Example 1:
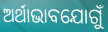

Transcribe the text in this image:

ଅର୍ଥାଭାବଯୋଗୁଁ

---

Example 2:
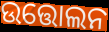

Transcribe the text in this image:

ଉତ୍ତୋଲନ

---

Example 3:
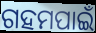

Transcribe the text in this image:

ଗହମପାଇଁ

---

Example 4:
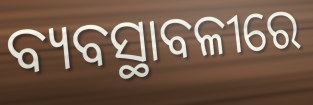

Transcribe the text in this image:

ବ୍ୟବସ୍ଥାବଳୀରେ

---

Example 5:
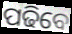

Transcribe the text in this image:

ପଢିବେ